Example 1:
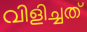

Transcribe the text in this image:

വിളിച്ചത്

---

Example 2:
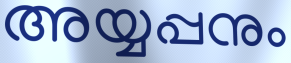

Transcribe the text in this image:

അയ്യപ്പനും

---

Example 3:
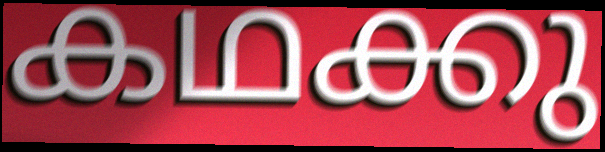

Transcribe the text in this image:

കഥക്കു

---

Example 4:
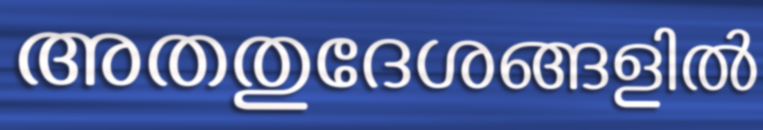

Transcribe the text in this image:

അതതുദേശങ്ങളിൽ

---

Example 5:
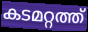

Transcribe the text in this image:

കടമറ്റത്ത്